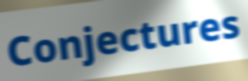
Conjectures